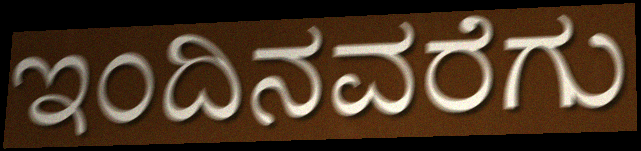
ಇಂದಿನವರೆಗು